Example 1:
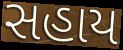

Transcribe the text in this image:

સહાય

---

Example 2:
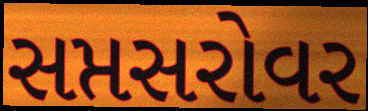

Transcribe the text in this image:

સપ્તસરોવર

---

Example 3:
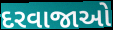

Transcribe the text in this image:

દરવાજાઓ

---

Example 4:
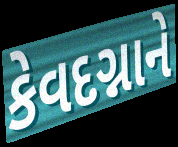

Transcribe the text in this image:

કેવદગ્નાને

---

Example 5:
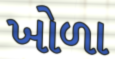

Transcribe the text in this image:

ખોળા